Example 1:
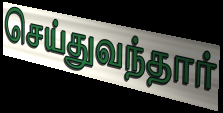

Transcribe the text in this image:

செய்துவந்தார்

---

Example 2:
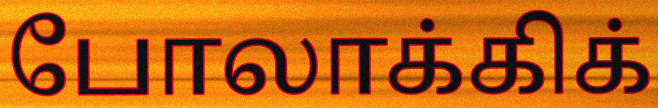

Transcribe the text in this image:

போலாக்கிக்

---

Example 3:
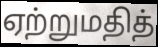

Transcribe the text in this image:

ஏற்றுமதித்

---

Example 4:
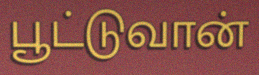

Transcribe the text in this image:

பூட்டுவான்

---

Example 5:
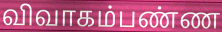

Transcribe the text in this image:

விவாகம்பண்ண